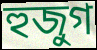
হুজুগ